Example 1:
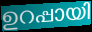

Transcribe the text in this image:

ഉറപ്പായി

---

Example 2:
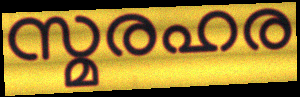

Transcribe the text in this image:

സ്മരഹര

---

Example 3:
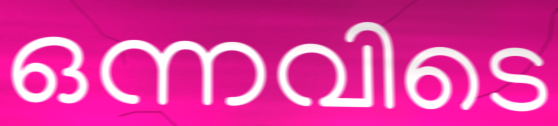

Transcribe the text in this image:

ഒന്നവിടെ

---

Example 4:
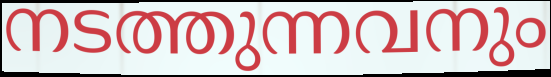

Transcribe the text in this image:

നടത്തുന്നവനും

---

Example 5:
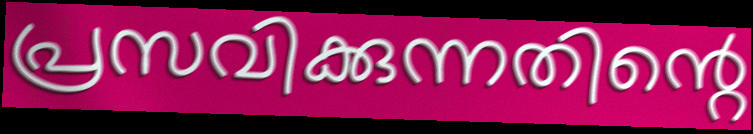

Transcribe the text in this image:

പ്രസവിക്കുന്നതിന്റെ